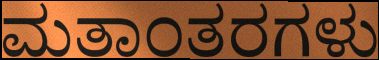
ಮತಾಂತರಗಳು